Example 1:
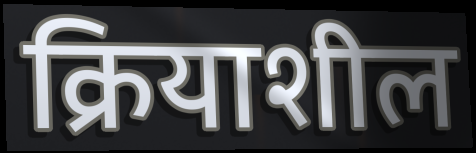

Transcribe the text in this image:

क्रियाशील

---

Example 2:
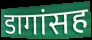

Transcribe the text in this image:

डागांसह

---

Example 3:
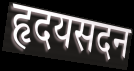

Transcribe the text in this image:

हृदयसदन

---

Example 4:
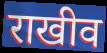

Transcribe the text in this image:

राखीव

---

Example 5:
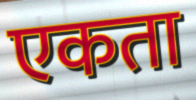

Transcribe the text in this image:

एकता